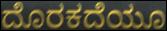
ದೊರಕದೆಯೂ